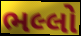
ભલ્લો